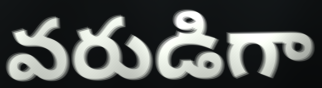
వరుడిగా